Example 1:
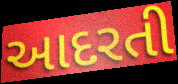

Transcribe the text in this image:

આદરતી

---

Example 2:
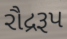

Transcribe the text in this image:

રૌદ્રરૂપ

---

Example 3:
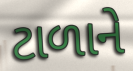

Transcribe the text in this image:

ટાળાને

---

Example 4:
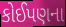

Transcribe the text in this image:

કોઈપણના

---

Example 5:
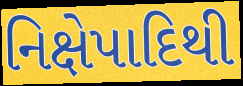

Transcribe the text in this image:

નિક્ષેપાદિથી